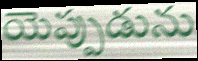
యెప్పుడును